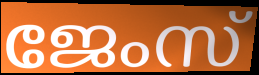
ജേംസ്